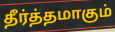
தீர்த்தமாகும்